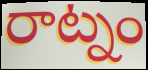
రాట్నం